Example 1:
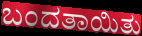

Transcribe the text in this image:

ಬಂದತಾಯಿತು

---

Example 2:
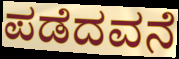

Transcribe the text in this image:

ಪಡೆದವನೆ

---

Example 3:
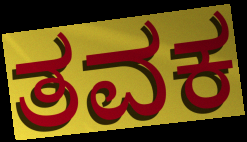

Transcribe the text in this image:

ತವಕ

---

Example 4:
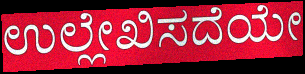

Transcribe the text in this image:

ಉಲ್ಲೇಖಿಸದೆಯೇ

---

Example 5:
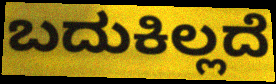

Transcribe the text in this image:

ಬದುಕಿಲ್ಲದೆ